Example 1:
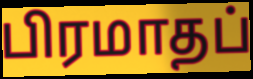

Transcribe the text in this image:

பிரமாதப்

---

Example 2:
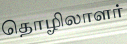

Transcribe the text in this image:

தொழிலாளர்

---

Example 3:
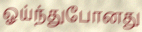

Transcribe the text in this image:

ஓய்ந்துபோனது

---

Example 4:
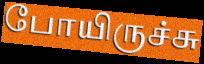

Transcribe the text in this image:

போயிருச்சு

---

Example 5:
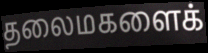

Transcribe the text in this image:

தலைமகளைக்